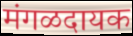
मंगळदायक